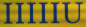
IIIIIU